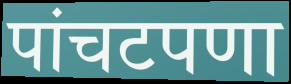
पांचटपणा